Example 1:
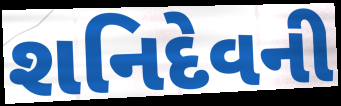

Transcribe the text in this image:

શનિદેવની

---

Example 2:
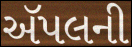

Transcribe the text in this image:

ઍપલની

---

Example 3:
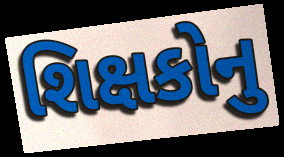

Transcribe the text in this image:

શિક્ષકોનુ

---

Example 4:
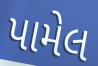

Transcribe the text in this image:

પામેલ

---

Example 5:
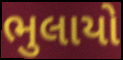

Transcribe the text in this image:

ભુલાયો